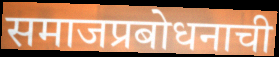
समाजप्रबोधनाची